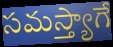
సమస్త్యాగే